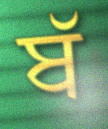
ਬੱ